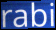
rabi